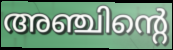
അഞ്ചിന്റെ